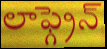
లాఫ్గ్రెన్